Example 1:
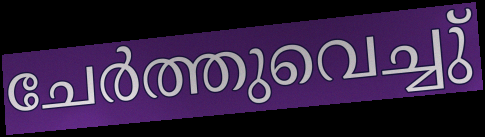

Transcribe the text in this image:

ചേർത്തുവെച്ചു്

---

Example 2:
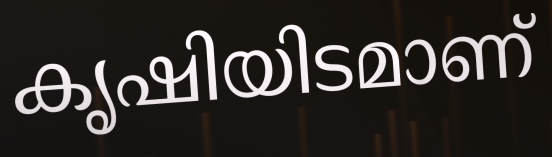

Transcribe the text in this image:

കൃഷിയിടമാണ്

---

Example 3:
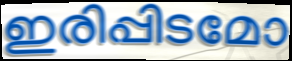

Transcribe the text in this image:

ഇരിപ്പിടമോ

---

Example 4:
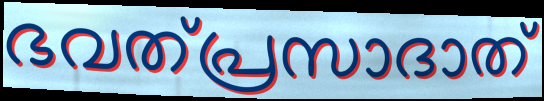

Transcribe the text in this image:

ഭവത്പ്രസാദാത്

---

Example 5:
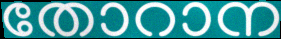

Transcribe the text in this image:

തോറാന